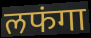
लफंगा